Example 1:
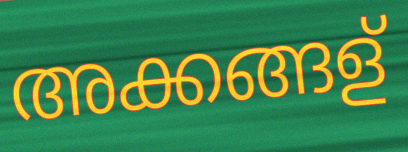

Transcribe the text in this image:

അക്കങ്ങള്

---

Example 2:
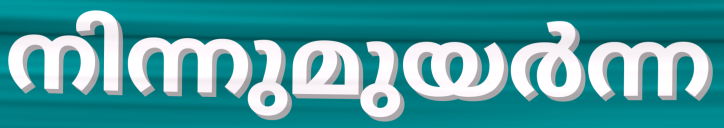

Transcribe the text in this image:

നിന്നുമുയർന്ന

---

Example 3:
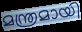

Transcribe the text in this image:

മന്ത്രമായി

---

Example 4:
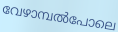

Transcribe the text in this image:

വേഴാമ്പൽപോലെ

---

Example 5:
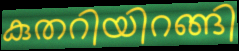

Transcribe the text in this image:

കുതറിയിറങ്ങി